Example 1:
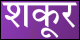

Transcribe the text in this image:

शकूर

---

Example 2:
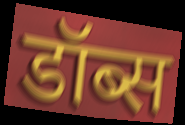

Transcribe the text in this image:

डॉब्स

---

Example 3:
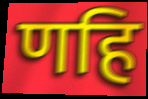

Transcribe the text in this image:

णहि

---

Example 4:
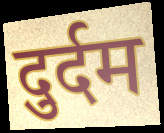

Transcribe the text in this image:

दुर्दम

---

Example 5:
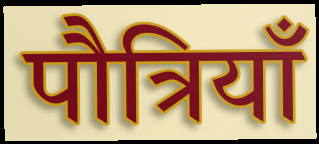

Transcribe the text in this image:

पौत्रियाँ